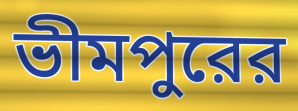
ভীমপুরের